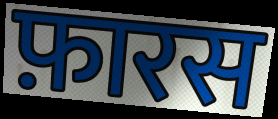
फ़ारस